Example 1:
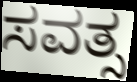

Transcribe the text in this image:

ಸವತ್ಸ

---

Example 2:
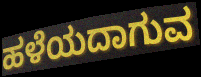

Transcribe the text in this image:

ಹಳೆಯದಾಗುವ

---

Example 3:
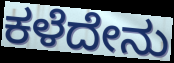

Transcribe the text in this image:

ಕಳೆದೇನು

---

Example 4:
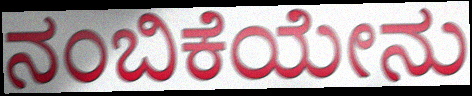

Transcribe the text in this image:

ನಂಬಿಕೆಯೇನು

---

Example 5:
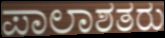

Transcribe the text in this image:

ಪಾಲಾಶತರು